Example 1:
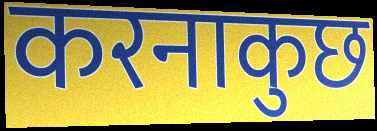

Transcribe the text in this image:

करनाकुछ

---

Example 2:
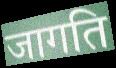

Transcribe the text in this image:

जागति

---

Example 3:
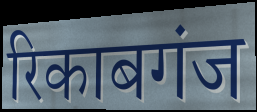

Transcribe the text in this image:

रिकाबगंज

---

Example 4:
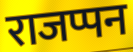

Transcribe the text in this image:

राजप्पन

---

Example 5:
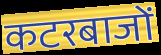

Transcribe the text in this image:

कटरबाजों